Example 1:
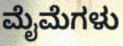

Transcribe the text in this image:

ಮೈಮೆಗಳು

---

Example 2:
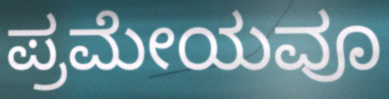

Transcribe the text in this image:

ಪ್ರಮೇಯವೂ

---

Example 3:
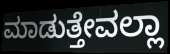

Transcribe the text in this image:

ಮಾಡುತ್ತೇವಲ್ಲಾ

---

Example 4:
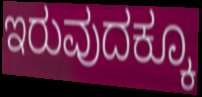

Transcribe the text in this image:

ಇರುವುದಕ್ಕೂ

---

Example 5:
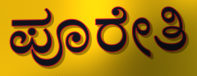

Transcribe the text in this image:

ಪೂರೇತಿ